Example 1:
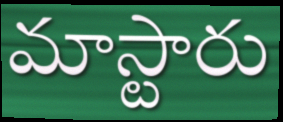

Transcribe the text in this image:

మాస్టారు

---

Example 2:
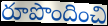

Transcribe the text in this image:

రూపొందించి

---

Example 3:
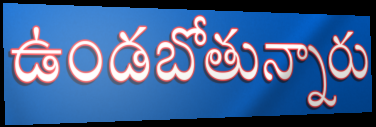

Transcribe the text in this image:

ఉండబోతున్నారు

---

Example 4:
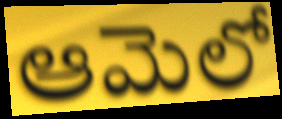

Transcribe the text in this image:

ఆమెలో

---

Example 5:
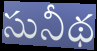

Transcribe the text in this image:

సునీథ